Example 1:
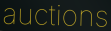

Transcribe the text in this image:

auctions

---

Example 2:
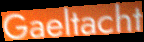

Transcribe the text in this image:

Gaeltacht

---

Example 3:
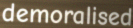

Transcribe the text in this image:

demoralised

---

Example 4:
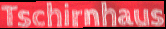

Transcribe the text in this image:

Tschirnhaus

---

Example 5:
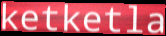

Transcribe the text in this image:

ketketla